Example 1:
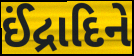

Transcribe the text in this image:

ઈંદ્રાદિને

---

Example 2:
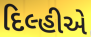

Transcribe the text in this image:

દિલ્હીએ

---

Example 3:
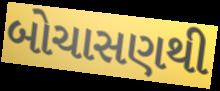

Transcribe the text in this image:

બોચાસણથી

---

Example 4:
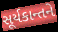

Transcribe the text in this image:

સૂર્યકાન્તને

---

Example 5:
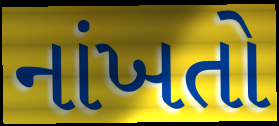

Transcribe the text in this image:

નાંખતો